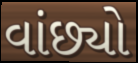
વાંછ્યો